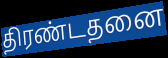
திரண்டதனை